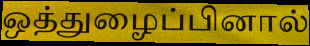
ஒத்துழைப்பினால்